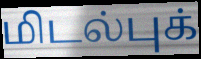
மிடல்புக்